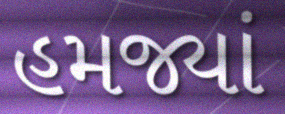
હમજ્યાં